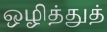
ஒழித்துத்